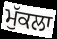
ਮੁੱਕਲਾ